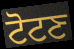
ਟੋਟਣ